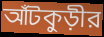
আঁটকুড়ীর